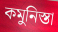
কমুনিস্তা